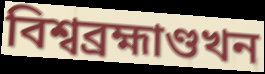
বিশ্বব্ৰহ্মাণ্ডখন